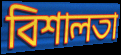
বিশালতা